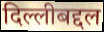
दिल्लीबद्दल